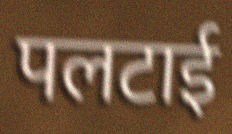
पलटाई